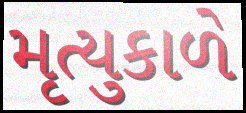
મૃત્યુકાળે